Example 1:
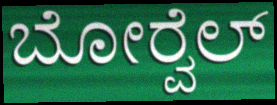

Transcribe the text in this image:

ಬೋರ್‍ವೆಲ್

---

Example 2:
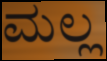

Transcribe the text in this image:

ಮಲ್ಲ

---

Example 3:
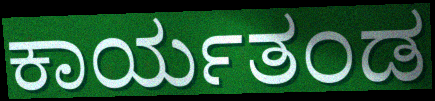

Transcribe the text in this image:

ಕಾರ್ಯತಂಡ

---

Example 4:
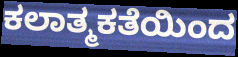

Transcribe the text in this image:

ಕಲಾತ್ಮಕತೆಯಿಂದ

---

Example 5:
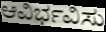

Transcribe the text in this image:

ಆವಿರ್ಭವಿಸು